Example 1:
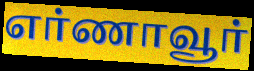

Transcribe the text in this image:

எர்ணாவூர்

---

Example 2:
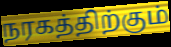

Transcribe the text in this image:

நரகத்திற்கும்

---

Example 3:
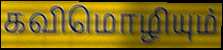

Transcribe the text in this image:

கவிமொழியும்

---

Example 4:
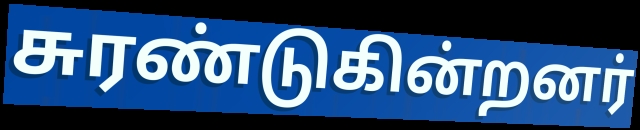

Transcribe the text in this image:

சுரண்டுகின்றனர்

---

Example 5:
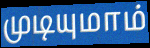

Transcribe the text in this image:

முடியுமாம்